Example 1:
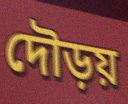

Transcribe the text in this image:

দৌড়য়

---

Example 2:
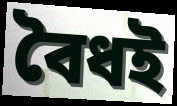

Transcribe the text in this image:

বৈধই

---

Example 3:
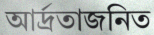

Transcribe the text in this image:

আর্দ্রতাজনিত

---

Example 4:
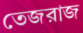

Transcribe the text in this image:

তেজরাজ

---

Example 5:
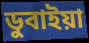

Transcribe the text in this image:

ডুবাইয়া